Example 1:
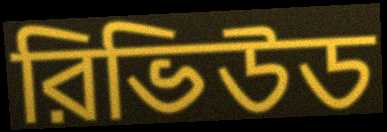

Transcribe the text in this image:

রিভিউড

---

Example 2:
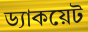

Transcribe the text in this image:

ড্যাকয়েট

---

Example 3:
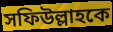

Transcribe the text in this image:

সফিউল্লাহকে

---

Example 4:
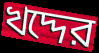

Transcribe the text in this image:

খদ্দের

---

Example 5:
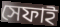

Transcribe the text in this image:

সেফাই